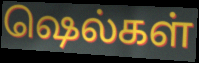
ஷெல்கள்